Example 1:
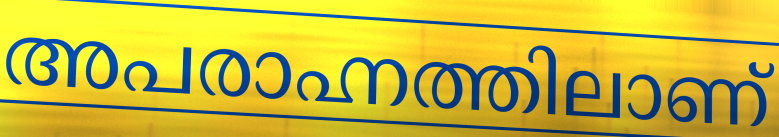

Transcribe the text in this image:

അപരാഹ്നത്തിലാണ്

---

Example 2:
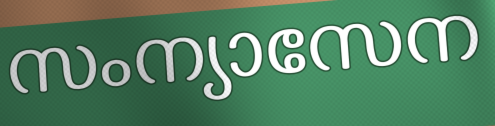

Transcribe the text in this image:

സംന്യാസേന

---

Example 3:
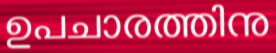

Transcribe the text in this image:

ഉപചാരത്തിനു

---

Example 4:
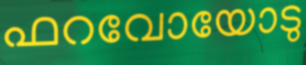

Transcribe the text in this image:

ഫറവോയോടു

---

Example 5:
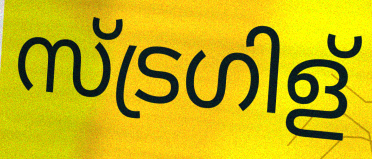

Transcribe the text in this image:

സ്ട്രഗിള്